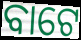
ବାଟେ